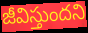
జీవిస్తుందని